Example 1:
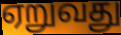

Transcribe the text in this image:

ஏறுவது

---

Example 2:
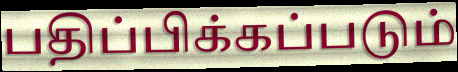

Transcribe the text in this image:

பதிப்பிக்கப்படும்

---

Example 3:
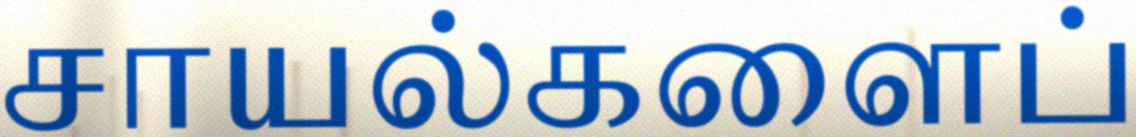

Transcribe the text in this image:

சாயல்களைப்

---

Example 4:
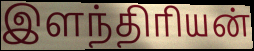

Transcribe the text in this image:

இளந்திரியன்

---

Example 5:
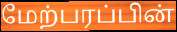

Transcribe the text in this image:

மேற்பரப்பின்